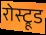
रोस्ट्रूड